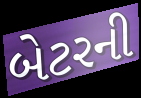
બેટરની